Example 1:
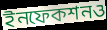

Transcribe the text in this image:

ইনফেকশনও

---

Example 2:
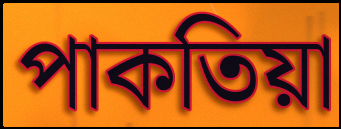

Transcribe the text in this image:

পাকতিয়া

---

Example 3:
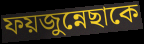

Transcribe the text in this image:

ফয়জুন্নেছাকে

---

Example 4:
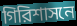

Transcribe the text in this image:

গিরিশাসনে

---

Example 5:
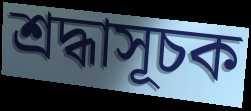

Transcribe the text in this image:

শ্রদ্ধাসূচক